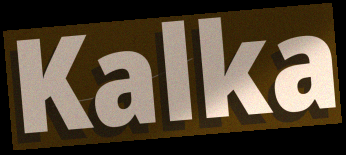
Kalka